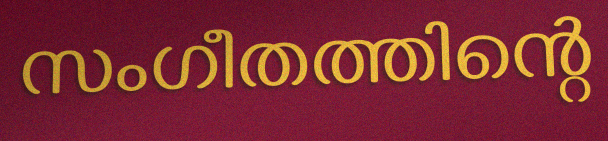
സംഗീതത്തിന്റെ